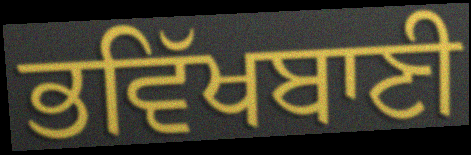
ਭਵਿੱਖਬਾਣੀ